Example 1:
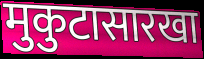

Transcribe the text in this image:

मुकुटासारखा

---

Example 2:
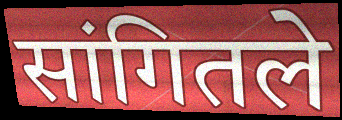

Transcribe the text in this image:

सांगितले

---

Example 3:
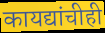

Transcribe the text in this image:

कायद्यांचीही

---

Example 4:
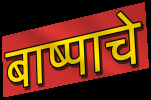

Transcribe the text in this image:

बाष्पाचे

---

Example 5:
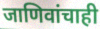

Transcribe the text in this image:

जाणिवांचाही